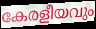
കേരളീയവും